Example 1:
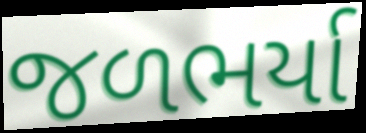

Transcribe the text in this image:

જળભર્યા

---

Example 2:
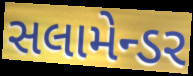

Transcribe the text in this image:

સલામેન્ડર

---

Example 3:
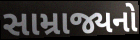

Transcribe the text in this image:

સામ્રાજ્યનો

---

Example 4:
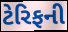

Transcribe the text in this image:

ટેરિફની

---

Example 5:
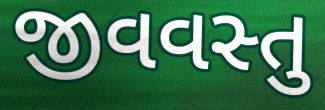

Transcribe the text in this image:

જીવવસ્તુ